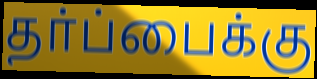
தர்ப்பைக்கு